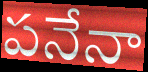
పనేనా